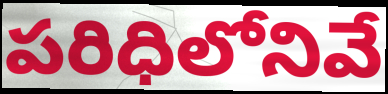
పరిధిలోనివే